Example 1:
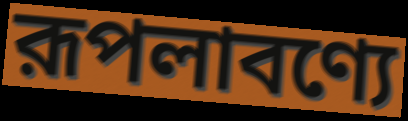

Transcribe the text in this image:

রূপলাবণ্যে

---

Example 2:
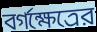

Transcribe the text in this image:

বর্গক্ষেত্রের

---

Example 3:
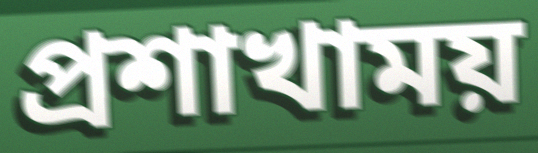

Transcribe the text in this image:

প্রশাখাময়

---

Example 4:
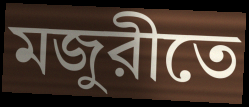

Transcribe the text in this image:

মজুরীতে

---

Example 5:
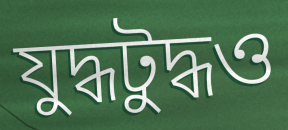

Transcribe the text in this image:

যুদ্ধটুদ্ধও